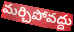
మర్చిపోవద్దు